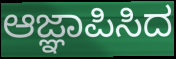
ಆಜ್ಞಾಪಿಸಿದ